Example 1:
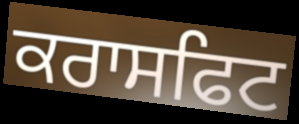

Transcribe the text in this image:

ਕਰਾਸਫਿਟ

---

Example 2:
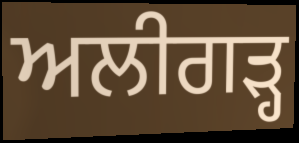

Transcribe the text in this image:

ਅਲੀਗੜ੍ਹ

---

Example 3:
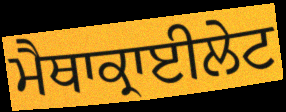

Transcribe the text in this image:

ਮੈਥਾਕ੍ਰਾਈਲੇਟ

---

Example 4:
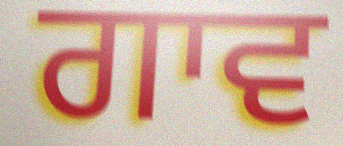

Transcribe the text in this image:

ਗਾਵ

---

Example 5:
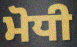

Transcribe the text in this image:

ਮੋਧੀ